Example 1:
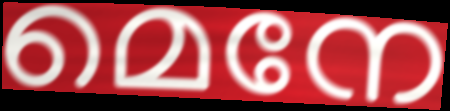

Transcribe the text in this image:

മെനേ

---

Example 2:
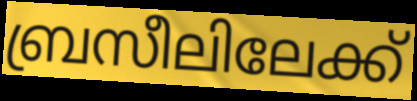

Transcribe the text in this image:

ബ്രസീലിലേക്ക്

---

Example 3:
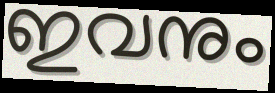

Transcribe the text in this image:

ഇവനും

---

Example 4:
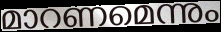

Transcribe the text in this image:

മാറണമെന്നും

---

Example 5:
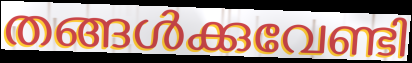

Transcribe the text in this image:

തങ്ങൾക്കുവേണ്ടി